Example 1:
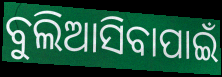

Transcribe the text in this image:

ବୁଲିଆସିବାପାଇଁ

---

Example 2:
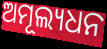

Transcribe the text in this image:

ଅମୂଲ୍ୟଧନ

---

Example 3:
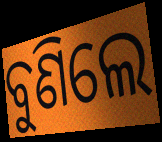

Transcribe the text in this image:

ବୁଣିଲେ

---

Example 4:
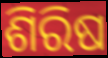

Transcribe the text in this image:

ଶିରିଷ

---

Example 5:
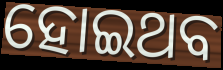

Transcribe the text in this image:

ହୋଇଥବ